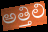
అత్తిలి